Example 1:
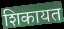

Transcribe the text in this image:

शिकायत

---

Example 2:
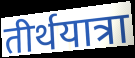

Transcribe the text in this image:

तीर्थयात्रा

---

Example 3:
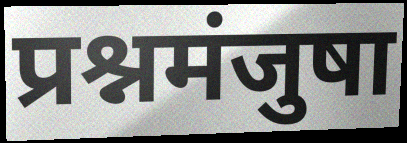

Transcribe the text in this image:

प्रश्नमंजुषा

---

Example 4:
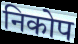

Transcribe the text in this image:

निकोप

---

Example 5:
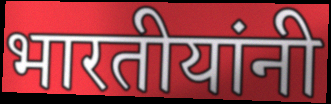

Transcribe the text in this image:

भारतीयांनी